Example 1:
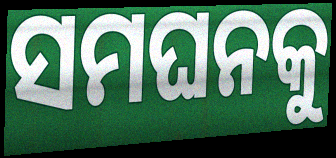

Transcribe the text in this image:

ସମଘନକୁ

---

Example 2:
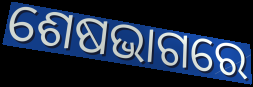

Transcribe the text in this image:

ଶେଷଭାଗରେ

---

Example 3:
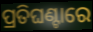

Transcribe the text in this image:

ପ୍ରତିଘଣ୍ଟାରେ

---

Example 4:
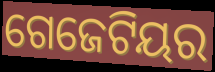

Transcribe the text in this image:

ଗେଜେଟିୟର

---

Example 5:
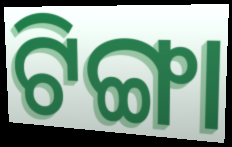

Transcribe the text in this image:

ଟିଙ୍ଗା